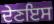
ਦੇਣਇਸ